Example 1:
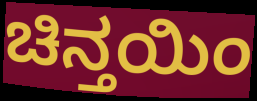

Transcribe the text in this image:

ಚಿನ್ತಯಿಂ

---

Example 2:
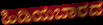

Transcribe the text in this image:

ಹಿಡಿಯಬಾರದ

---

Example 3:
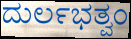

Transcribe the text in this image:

ದುರ್ಲಭತ್ವಂ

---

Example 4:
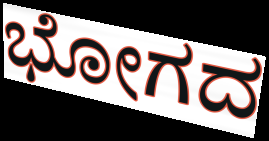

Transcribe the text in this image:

ಭೋಗದ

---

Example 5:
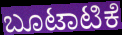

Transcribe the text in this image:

ಬೂಟಾಟಿಕೆ